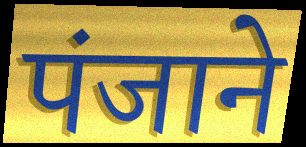
पंजाने